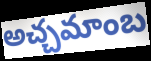
అచ్చమాంబ